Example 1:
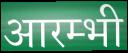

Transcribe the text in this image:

आरम्भी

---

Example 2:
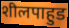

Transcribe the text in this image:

शीलपाहुड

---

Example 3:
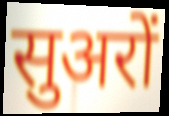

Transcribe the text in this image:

सुअरों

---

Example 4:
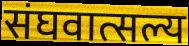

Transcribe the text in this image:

संघवात्सल्य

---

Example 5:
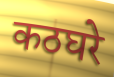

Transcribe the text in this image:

कठघरे